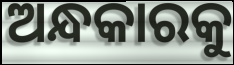
ଅନ୍ଧକାରକୁ